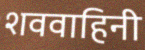
शववाहिनी